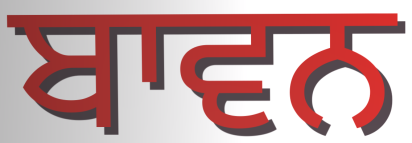
ਬਾਵਨ